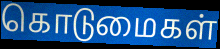
கொடுமைகள்